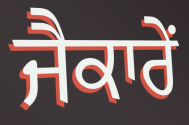
ਜੈਕਾਰੇਂ